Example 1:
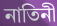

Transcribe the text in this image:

নাতিনী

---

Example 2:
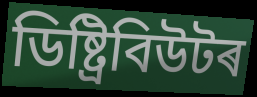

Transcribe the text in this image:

ডিষ্ট্ৰিবিউটৰ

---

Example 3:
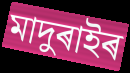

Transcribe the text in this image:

মাদুৰাইৰ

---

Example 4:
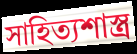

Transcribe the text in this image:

সাহিত্য়শাস্ত্ৰ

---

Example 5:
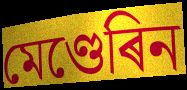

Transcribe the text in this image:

মেণ্ডেৰিন